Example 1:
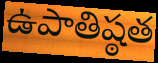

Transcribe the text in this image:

ఉపాతిష్ఠత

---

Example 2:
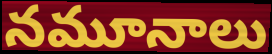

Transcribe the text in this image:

నమూనాలు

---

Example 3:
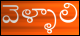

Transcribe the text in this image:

వెళ్ళాలి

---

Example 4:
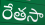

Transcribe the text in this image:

రేతసా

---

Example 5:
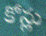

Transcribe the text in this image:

కోన్లు